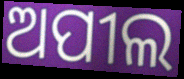
ଅପୀଲ